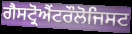
ਗੈਸਟ੍ਰੋਐਂਟਰੌਲੋਜਿਸਟ